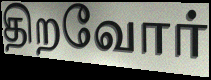
திறவோர்